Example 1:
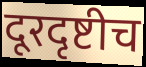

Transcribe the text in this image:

दूरदृष्टीच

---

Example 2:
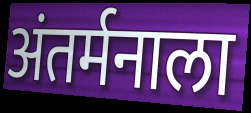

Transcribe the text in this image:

अंतर्मनाला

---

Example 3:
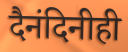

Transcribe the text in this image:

दैनंदिनीही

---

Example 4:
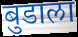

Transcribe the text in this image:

बुडाला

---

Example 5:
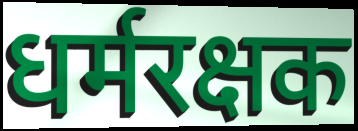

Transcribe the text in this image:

धर्मरक्षक